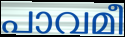
പാവമീ